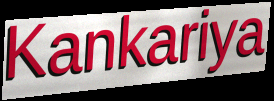
Kankariya